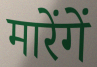
मारेंगें